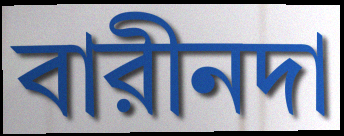
বারীনদা